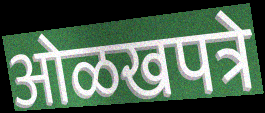
ओळखपत्रे